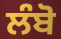
ਲੰਬੋ